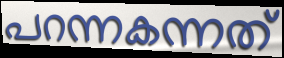
പറന്നകന്നത്